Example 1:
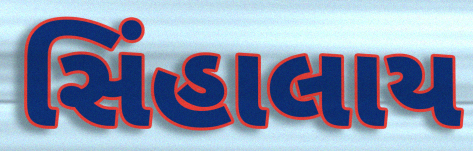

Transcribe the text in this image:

સિંહાલાય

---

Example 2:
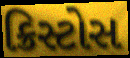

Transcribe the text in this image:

ક્રિસ્ટોસ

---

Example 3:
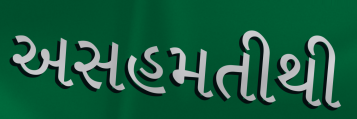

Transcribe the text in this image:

અસહમતીથી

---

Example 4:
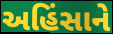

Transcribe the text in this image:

અહિંસાને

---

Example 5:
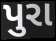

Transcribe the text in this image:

પુરા